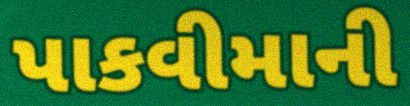
પાકવીમાની